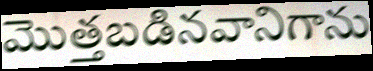
మొత్తబడినవానిగాను